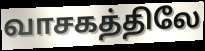
வாசகத்திலே